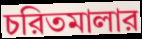
চরিতমালার